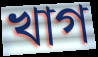
খাগ